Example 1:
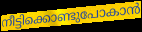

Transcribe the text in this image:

നീട്ടിക്കൊണ്ടുപോകാൻ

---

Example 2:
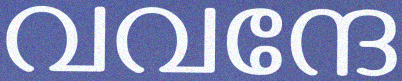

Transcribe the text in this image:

വവന്ദേ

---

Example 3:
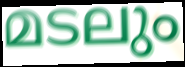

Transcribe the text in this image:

മടലും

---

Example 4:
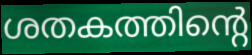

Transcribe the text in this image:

ശതകത്തിന്റെ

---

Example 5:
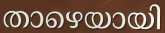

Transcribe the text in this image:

താഴെയായി